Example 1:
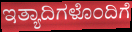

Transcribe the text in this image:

ಇತ್ಯಾದಿಗಳೊಂದಿಗೆ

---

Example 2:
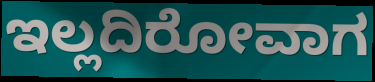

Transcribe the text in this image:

ಇಲ್ಲದಿರೋವಾಗ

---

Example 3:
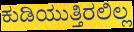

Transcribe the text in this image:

ಕುಡಿಯುತ್ತಿರಲಿಲ್ಲ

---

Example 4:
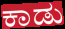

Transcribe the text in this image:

ಕಾಡು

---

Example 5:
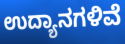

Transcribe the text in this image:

ಉದ್ಯಾನಗಳಿವೆ